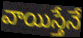
వాయిస్తేనే